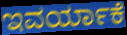
ಇವರ್ಯಾಕೆ